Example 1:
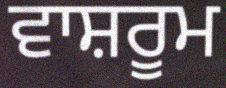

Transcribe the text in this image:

ਵਾਸ਼ਰੂਮ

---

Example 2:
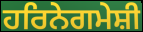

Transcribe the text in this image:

ਹਰਿਨੇਗਮੇਸ਼ੀ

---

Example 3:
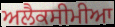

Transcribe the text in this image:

ਅਲੈਕਸੀਮੀਆ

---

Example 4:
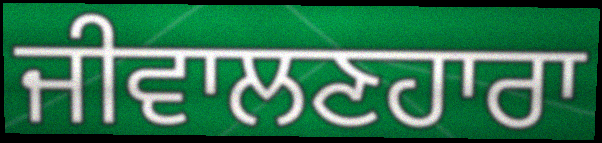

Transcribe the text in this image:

ਜੀਵਾਲਣਹਾਰਾ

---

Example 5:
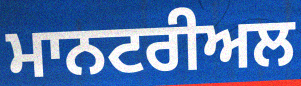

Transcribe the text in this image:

ਮਾਨਟਰੀਅਲ